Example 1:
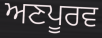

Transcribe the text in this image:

ਅਣਪੂਰਵ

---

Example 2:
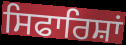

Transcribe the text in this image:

ਸਿਫਾਰਿਸ਼ਾਂ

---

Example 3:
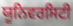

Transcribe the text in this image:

ਯੂਨਿਵਰਸਿਟੀ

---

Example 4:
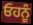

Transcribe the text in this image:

ਓਹਨੂੰ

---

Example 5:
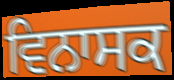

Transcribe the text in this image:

ਵਿਨਾਸਕ